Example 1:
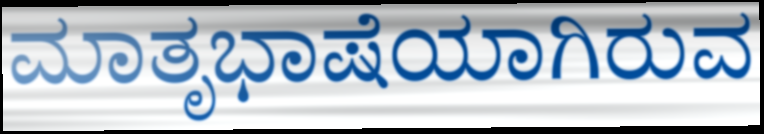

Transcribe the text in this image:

ಮಾತೃಭಾಷೆಯಾಗಿರುವ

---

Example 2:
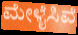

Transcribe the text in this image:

ಮೇಳೈಸಿವೆ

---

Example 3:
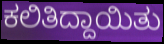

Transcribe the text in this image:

ಕಲಿತಿದ್ದಾಯಿತು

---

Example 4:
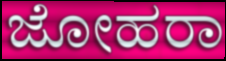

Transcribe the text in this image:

ಜೋಹರಾ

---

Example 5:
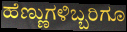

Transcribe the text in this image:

ಹೆಣ್ಣುಗಳಿಬ್ಬರಿಗೂ